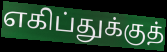
எகிப்துக்குத்